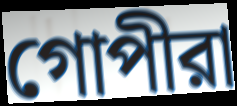
গোপীরা